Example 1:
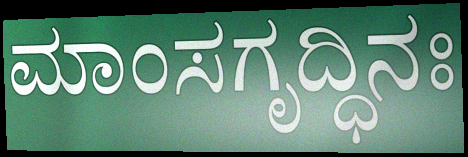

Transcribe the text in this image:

ಮಾಂಸಗೃದ್ಧಿನಃ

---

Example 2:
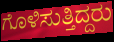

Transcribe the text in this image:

ಗೊಳಿಸುತ್ತಿದ್ದರು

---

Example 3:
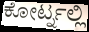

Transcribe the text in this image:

ಕೋರ್ಟ್ನಲ್ಲಿ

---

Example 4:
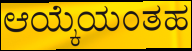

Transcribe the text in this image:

ಆಯ್ಕೆಯಂತಹ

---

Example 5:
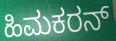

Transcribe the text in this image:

ಹಿಮಕರನ್